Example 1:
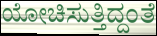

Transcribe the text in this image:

ಯೋಚಿಸುತ್ತಿದ್ದಂತೆ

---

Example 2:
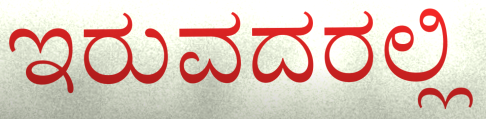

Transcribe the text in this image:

ಇರುವದರಲ್ಲಿ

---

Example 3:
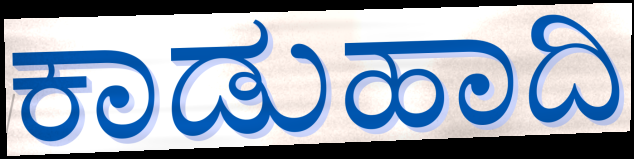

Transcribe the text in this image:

ಕಾಡುಹಾದಿ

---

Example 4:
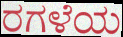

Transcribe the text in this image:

ರಗಳೆಯ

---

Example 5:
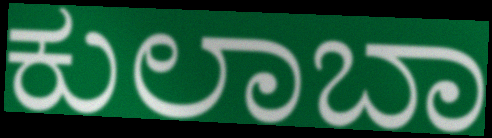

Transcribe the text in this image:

ಕುಲಾಬಾ